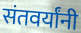
संतवर्यांनी